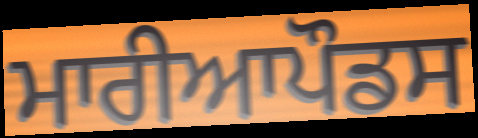
ਮਾਰੀਆਪੌਡਸ